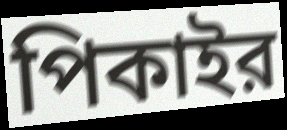
পিকাইর